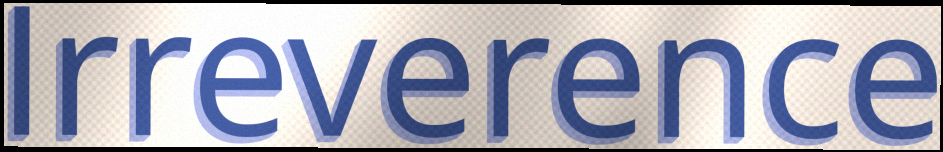
Irreverence